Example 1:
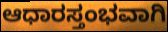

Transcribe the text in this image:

ಆಧಾರಸ್ತಂಭವಾಗಿ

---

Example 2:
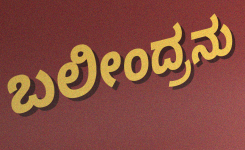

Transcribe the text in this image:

ಬಲೀಂದ್ರನು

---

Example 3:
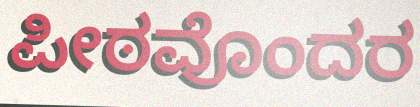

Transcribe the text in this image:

ಪೀಠವೊಂದರ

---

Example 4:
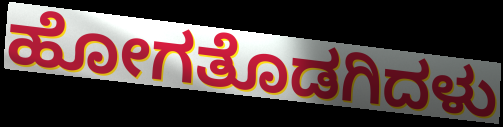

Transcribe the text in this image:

ಹೋಗತೊಡಗಿದಳು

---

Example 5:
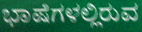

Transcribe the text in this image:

ಭಾಷೆಗಳಲ್ಲಿರುವ